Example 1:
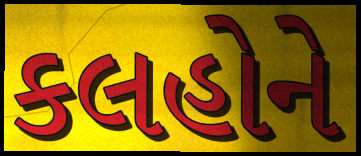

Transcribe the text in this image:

કલહોને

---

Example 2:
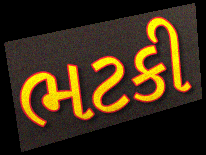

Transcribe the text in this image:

ભટકી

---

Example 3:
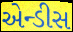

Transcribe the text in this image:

એન્ડીસ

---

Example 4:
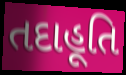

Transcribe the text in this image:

તદાહૂતિ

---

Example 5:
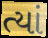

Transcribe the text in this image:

ત્‍યાં